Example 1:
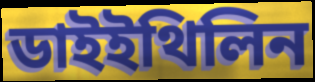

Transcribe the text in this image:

ডাইইথিলিন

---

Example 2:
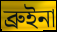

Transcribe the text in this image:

ব্রুইনা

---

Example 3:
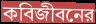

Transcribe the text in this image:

কবিজীবনের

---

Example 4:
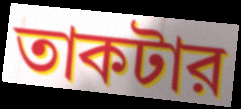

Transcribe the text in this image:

তাকটার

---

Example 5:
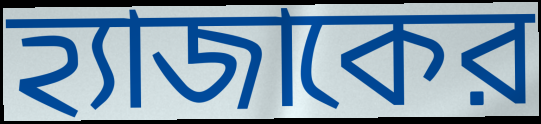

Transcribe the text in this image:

হ্যাজাকের